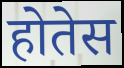
होतेस